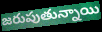
జరుపుతున్నాయి